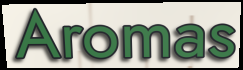
Aromas